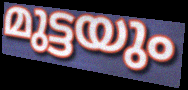
മുട്ടയും